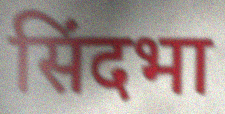
सिंदभा